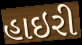
હાઇરી